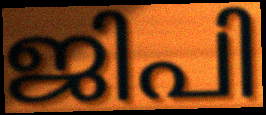
ജിപി